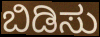
ಬಿಡಿಸು